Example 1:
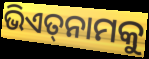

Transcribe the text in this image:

ଭିଏତ୍‌ନାମକୁ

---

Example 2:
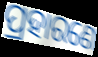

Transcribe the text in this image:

ପ୍ରହାରଣେ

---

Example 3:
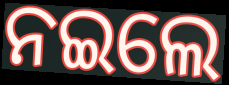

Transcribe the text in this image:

ନଇଲେ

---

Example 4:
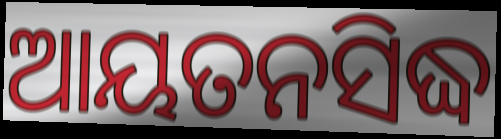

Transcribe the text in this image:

ଆୟତନସିଦ୍ଧ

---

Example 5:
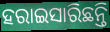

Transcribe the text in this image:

ହରାଇସାରିଛନ୍ତି